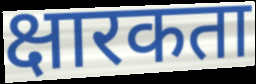
क्षारकता